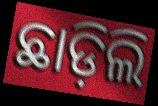
ଛାଡ଼ିଲି